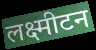
लक्ष्मीटन